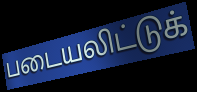
படையலிட்டுக்